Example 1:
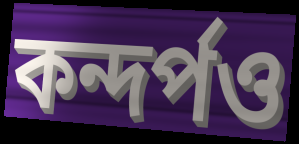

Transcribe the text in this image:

কন্দর্পও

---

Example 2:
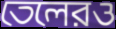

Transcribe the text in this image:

তেলেরও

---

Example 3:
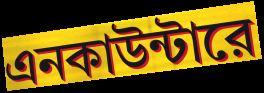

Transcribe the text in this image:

এনকাউন্টারে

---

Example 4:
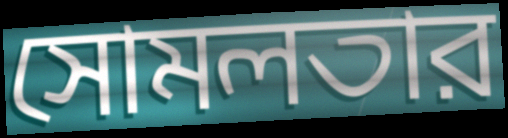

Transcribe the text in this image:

সোমলতার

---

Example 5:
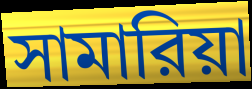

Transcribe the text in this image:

সামারিয়া